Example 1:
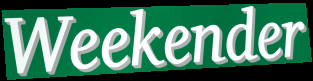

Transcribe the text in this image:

Weekender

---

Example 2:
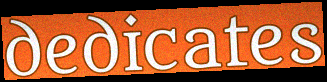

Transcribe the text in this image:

dedicates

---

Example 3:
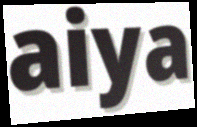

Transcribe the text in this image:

aiya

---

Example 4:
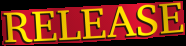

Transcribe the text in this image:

RELEASE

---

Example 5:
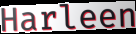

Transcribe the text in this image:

Harleen